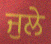
ਜੁਲੇ